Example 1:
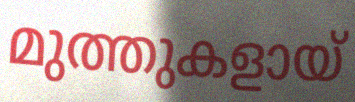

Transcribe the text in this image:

മുത്തുകളായ്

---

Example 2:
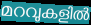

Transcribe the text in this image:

മറവുകളിൽ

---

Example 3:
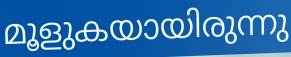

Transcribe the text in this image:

മൂളുകയായിരുന്നു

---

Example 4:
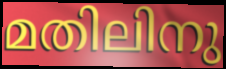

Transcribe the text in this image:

മതിലിനു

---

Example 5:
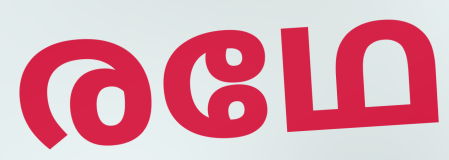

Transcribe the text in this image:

രഥേ